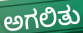
ಅಗಲಿತು